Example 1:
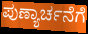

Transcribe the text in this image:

ಪುಣ್ಯಾರ್ಚನೆಗೆ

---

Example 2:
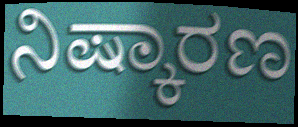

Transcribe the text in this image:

ನಿಷ್ಕಾರಣ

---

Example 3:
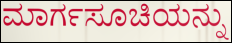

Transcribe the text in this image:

ಮಾರ್ಗಸೂಚಿಯನ್ನು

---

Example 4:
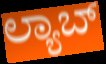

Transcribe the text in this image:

ಲ್ಯಾಬ್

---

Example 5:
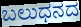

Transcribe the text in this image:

ಬಲುಧನದ